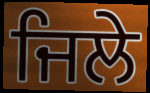
ਜਿਲੇ